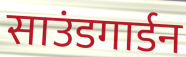
साउंडगार्डन